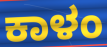
ಕಾಳಂ